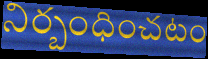
నిర్బంధించటం